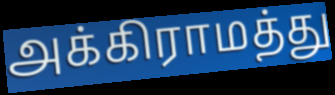
அக்கிராமத்து